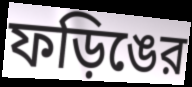
ফড়িঙের